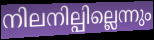
നിലനില്പില്ലെന്നും